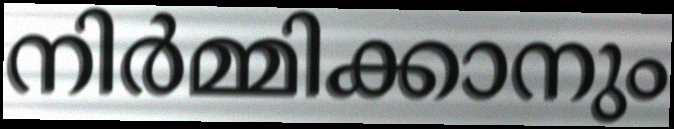
നിർമ്മിക്കാനും